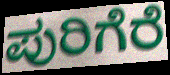
ಪುರಿಗೆರೆ